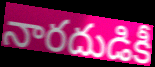
నారదుడికీ